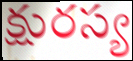
క్షురస్య